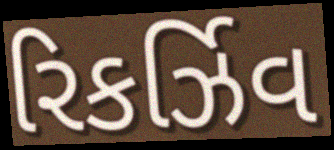
રિકર્ઝિવ